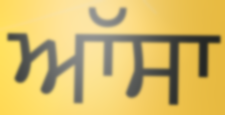
ਆੱਸਾ